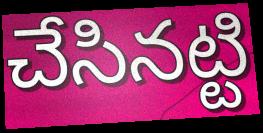
చేసినట్టి